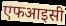
एफआइसी